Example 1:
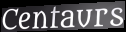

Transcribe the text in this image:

Centaurs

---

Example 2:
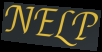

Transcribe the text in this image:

NELP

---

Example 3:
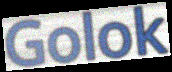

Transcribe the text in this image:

Golok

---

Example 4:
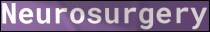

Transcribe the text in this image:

Neurosurgery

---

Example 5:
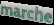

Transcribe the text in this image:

marche